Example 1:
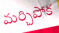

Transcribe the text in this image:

మర్చిపోక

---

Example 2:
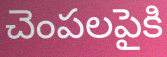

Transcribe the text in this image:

చెంపలపైకి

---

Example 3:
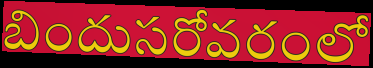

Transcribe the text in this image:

బిందుసరోవరంలో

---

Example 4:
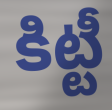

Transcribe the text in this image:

కిట్టీ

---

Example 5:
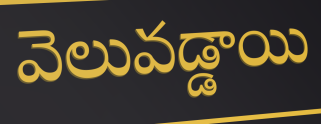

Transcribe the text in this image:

వెలువడ్డాయి